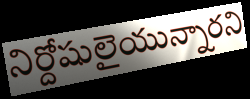
నిర్దోషులైయున్నారని